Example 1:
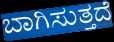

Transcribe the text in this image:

ಬಾಗಿಸುತ್ತದೆ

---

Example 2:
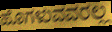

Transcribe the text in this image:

ಹೊಗಳುವವರಲ್ಲ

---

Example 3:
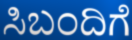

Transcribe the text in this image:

ಸಿಬಂದಿಗೆ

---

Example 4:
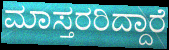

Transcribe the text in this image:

ಮಾಸ್ತರರಿದ್ದಾರೆ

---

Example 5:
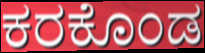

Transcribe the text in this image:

ಕರಕೊಂಡ